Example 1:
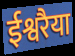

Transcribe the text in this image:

ईश्वरैया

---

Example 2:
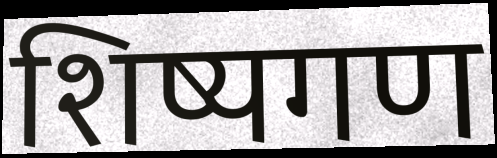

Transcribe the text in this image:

शिष्यगण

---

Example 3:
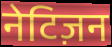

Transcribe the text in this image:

नेटिज़न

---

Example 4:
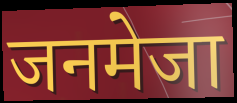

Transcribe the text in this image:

जनमेजा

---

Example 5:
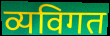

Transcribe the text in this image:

व्यविगत